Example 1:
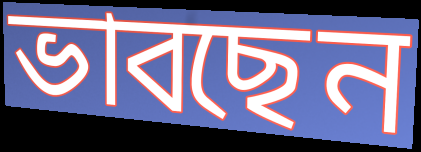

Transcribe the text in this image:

ভাবছেন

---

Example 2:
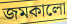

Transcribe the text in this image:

জমকালো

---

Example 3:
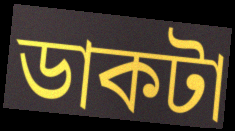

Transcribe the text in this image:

ডাকটা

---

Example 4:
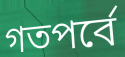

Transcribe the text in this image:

গতপর্বে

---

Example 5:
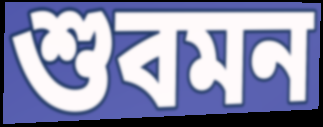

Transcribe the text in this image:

শুবমন